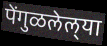
पेंगुळलेल्या